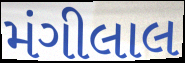
મંગીલાલ